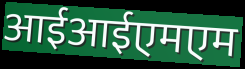
आईआईएमएम